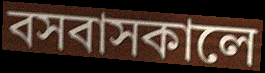
বসবাসকালে